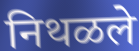
निथळले